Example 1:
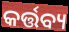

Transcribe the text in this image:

କର୍ତ୍ତବ୍ୟ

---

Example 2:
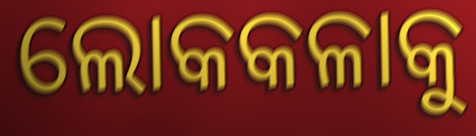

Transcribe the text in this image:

ଲୋକକଳାକୁ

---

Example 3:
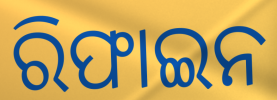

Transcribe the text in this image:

ରିଫାଇନ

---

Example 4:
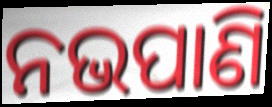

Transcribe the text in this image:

ନଭପାଣି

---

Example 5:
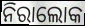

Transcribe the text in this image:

ନିରାଲୋକ